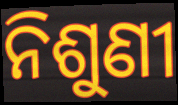
ନିଶୁଣୀ